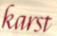
karst